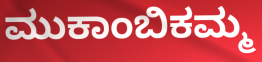
ಮುಕಾಂಬಿಕಮ್ಮ